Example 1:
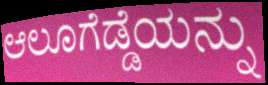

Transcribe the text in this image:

ಆಲೂಗೆಡ್ಡೆಯನ್ನು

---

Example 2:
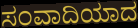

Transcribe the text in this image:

ಸಂವಾದಿಯಾದ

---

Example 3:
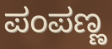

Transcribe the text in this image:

ಪಂಪಣ್ಣ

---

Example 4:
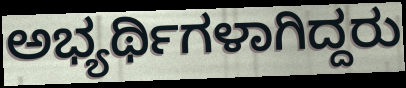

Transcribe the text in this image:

ಅಭ್ಯರ್ಥಿಗಳಾಗಿದ್ದರು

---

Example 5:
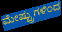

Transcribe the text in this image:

ಮೇಷ್ಟ್ರುಗಳಿಂದ